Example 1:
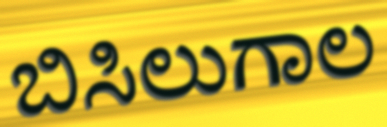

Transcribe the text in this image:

ಬಿಸಿಲುಗಾಲ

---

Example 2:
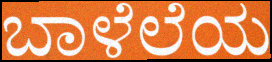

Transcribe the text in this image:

ಬಾಳೆಲೆಯ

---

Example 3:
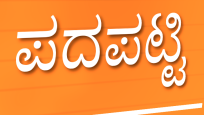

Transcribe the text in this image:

ಪದಪಟ್ಟಿ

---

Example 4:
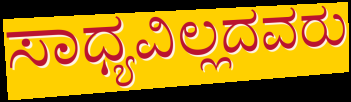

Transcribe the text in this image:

ಸಾಧ್ಯವಿಲ್ಲದವರು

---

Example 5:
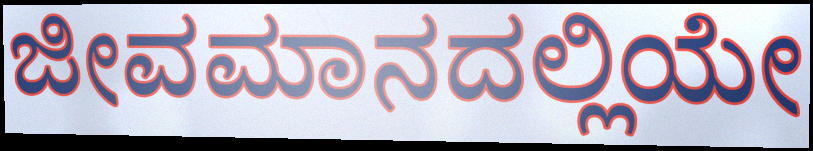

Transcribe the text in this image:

ಜೀವಮಾನದಲ್ಲಿಯೇ